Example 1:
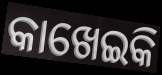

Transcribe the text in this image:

କାଖେଇକି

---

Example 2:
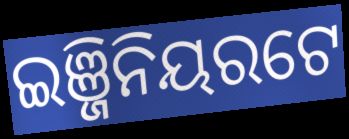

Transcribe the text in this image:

ଇଞ୍ଜିନିୟରଟେ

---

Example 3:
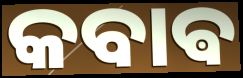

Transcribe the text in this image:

କବାଵ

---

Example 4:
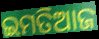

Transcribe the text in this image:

ଇମତିଆଜ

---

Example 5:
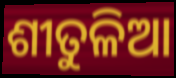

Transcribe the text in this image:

ଶୀତୁଳିଆ